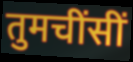
तुमचींसीं